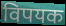
विपयक